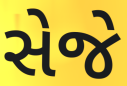
સેજે